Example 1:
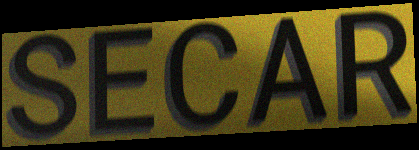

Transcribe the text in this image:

SECAR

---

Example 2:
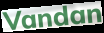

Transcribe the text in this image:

Vandan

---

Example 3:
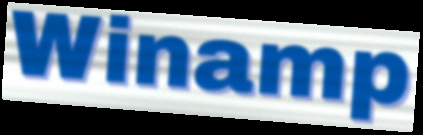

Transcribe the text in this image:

Winamp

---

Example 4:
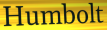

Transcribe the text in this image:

Humbolt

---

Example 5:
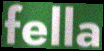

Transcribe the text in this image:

fella